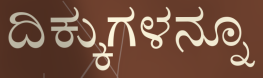
ದಿಕ್ಕುಗಳನ್ನೂ